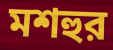
মশহুর